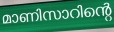
മാണിസാറിന്റെ